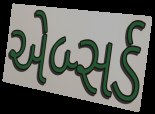
એબ્સર્ડ